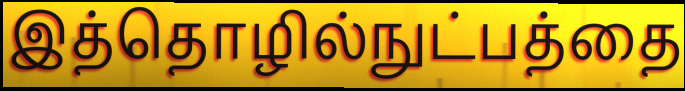
இத்தொழில்நுட்பத்தை